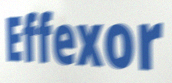
Effexor